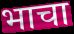
भाचा